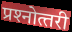
प्रश्‍नोत्‍तरी